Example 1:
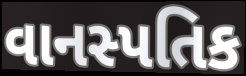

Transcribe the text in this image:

વાનસ્પતિક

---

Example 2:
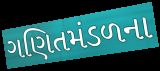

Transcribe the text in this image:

ગણિતમંડળના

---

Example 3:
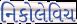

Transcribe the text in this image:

નિકોલેવિચ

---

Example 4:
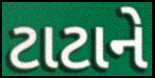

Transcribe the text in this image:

ટાટાને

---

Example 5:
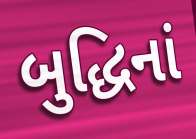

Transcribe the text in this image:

બુદ્ધિનાં